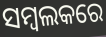
ସମ୍ବଲକରେ